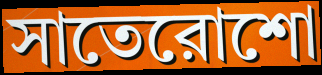
সাতেরোশো